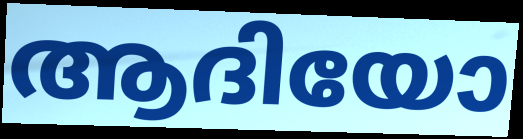
ആദിയോ